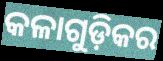
କଳାଗୁଡ଼ିକର